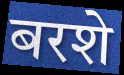
बरशे